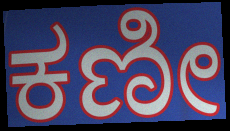
ಕಣೀ